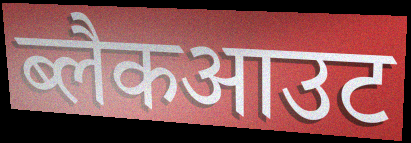
ब्लैकआउट